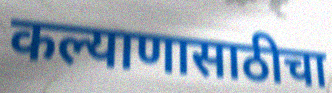
कल्याणासाठीचा